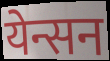
येन्सन